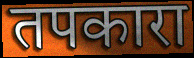
तपकारा